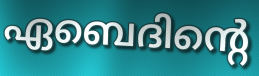
ഏബെദിന്റെ